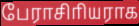
பேராசிரியராக